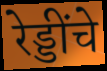
रेड्डींचे